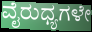
ವೈರುಧ್ಯಗಳೇ